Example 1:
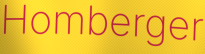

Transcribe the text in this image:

Homberger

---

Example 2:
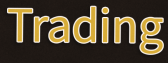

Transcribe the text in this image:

Trading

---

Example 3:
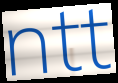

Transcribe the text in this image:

ntt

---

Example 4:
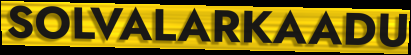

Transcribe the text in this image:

SOLVALARKAADU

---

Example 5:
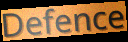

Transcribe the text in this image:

Defence